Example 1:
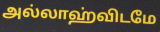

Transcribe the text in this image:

அல்லாஹ்விடமே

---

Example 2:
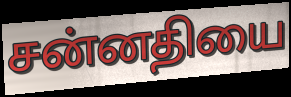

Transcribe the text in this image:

சன்னதியை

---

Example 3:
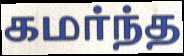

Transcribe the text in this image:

கமர்ந்த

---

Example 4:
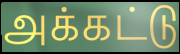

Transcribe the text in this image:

அக்கட்டு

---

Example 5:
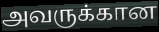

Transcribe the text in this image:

அவருக்கான